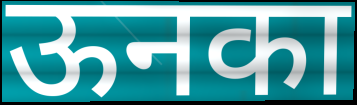
ऊनका